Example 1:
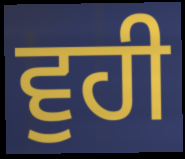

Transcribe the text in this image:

ਵੁਹੀ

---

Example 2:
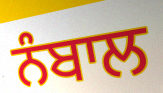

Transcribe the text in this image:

ਨੰਬਾਲ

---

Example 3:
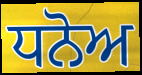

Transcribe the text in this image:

ਧਨੋਅ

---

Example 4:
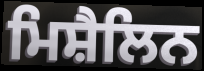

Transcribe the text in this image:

ਮਿਸ਼ੈਲਿਨ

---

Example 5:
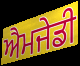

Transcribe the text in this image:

ਐਮਜੇਡੀ